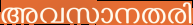
അവസാനതരി